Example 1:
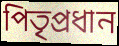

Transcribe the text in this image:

পিতৃপ্ৰধান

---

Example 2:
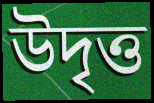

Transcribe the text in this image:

উদৃত্ত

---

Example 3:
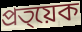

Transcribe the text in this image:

প্ৰত্য়েক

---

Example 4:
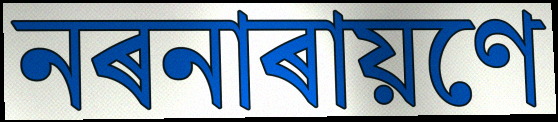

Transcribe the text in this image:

নৰনাৰায়ণে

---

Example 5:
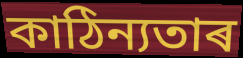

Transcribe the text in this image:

কাঠিন্যতাৰ